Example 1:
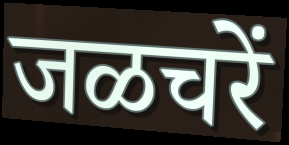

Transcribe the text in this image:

जळचरें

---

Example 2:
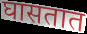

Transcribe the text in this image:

घासतात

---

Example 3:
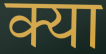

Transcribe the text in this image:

क्या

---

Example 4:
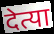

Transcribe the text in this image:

देत्या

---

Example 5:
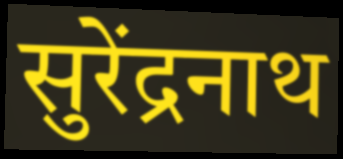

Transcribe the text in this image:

सुरेंद्रनाथ